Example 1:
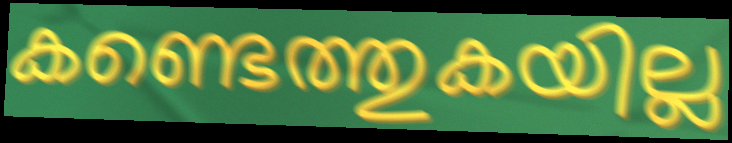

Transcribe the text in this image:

കണ്ടെത്തുകയില്ല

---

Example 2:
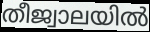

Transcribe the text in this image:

തീജ്വാലയിൽ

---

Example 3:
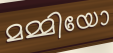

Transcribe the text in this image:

മമ്മിയോ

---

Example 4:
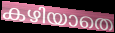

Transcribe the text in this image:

കഴിയാതെ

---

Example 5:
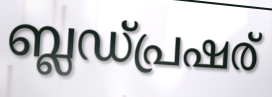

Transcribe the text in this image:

ബ്ലഡ്പ്രഷര്